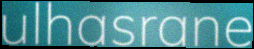
ulhasrane